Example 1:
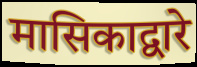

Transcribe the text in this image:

मासिकाद्वारे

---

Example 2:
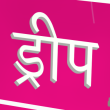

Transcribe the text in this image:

ड्रीप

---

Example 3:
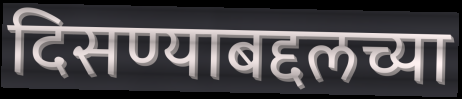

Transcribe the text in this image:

दिसण्याबद्दलच्या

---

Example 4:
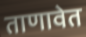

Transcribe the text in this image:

ताणावेत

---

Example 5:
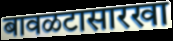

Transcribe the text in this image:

बावळटासारखा